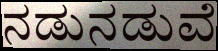
ನಡುನಡುವೆ